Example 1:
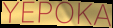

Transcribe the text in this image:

YEPOKA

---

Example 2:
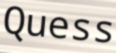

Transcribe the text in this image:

Quess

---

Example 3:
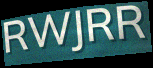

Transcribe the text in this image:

RWJRR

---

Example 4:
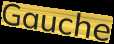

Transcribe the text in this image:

Gauche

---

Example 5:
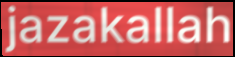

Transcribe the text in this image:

jazakallah